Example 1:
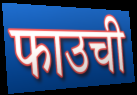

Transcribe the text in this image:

फाउची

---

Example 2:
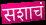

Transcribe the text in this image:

सशाचं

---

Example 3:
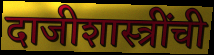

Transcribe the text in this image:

दाजीशास्त्रींची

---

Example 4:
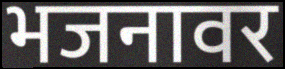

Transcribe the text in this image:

भजनावर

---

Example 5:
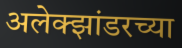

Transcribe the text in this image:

अलेक्झांडरच्या